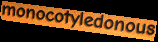
monocotyledonous